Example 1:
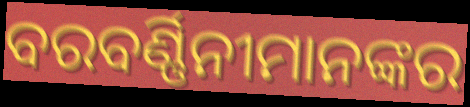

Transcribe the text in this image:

ବରବର୍ଣ୍ଣିନୀମାନଙ୍କର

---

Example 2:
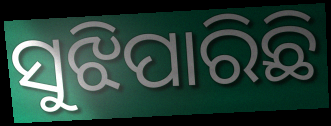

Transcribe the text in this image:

ସୁଝିପାରିଛି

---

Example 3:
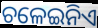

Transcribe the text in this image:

ଚଳେଇନିଏ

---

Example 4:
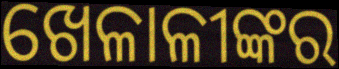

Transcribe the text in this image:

ଖେଳାଳୀଙ୍କର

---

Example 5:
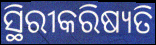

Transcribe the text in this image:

ସ୍ଥିରୀକରିଷ୍ଯତି